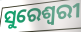
ସୁରେଶ୍ଵରୀ